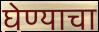
घेण्याचा